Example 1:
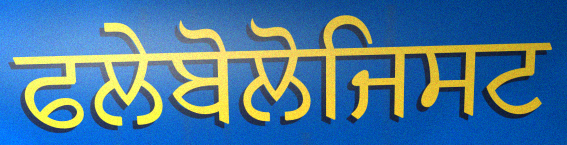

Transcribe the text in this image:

ਫਲੇਬੋਲੋਜਿਸਟ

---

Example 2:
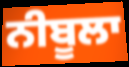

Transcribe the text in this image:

ਨੀਬੂਲਾ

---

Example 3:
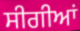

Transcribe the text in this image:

ਸੀਗੀਆਂ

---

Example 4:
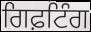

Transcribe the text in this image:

ਗਿਫ਼ਟਿੰਗ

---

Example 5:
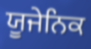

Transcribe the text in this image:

ਯੂਜੇਨਿਕ